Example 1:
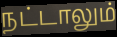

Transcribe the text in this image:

நட்டாலும்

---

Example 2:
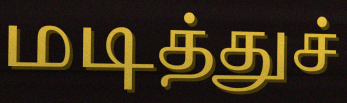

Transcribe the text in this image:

மடித்துச்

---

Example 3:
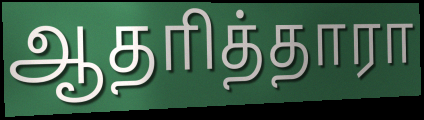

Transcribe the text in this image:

ஆதரித்தாரா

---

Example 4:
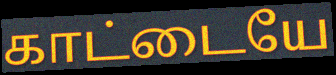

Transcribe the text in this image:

காட்டையே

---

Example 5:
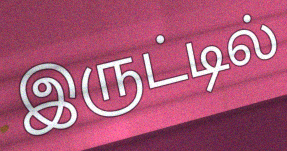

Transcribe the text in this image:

இருட்டில்